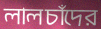
লালচাঁদের